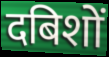
दबिशों